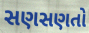
સણસણતો